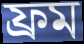
ফ্রম